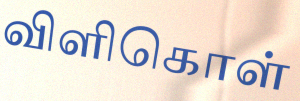
விளிகொள்